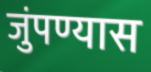
जुंपण्यास